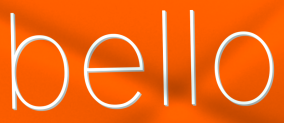
bello